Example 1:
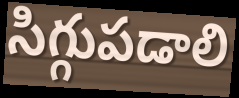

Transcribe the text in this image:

సిగ్గుపడాలి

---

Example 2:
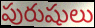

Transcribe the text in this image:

పురుషులు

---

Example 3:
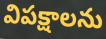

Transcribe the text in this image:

విపక్షాలను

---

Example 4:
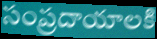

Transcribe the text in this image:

సంప్రదాయాలకి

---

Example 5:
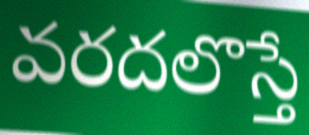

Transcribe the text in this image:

వరదలొస్తే